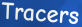
Tracers